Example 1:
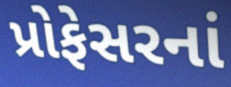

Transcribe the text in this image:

પ્રોફેસરનાં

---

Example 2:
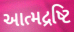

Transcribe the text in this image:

આત્મદ્રષ્ટિ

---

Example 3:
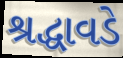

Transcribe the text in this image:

શ્રદ્ધાવડે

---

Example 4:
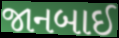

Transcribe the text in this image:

જાનબાઈ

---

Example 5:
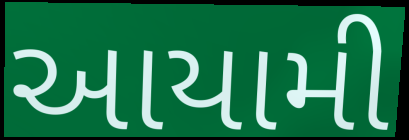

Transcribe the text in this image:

આયામી